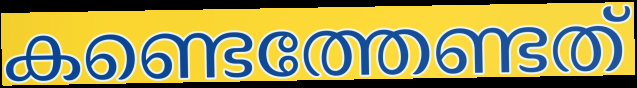
കണ്ടെത്തേണ്ടത്